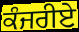
ਕੰਜਰੀਏ